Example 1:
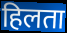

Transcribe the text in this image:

हिलता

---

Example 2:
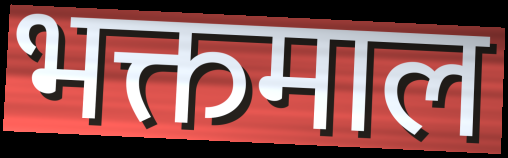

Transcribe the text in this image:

भक्तमाल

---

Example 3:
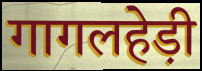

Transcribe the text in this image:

गागलहेड़ी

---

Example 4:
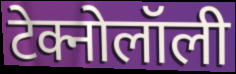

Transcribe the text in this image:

टेक्नोलॉली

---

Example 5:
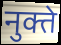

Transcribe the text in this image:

नुक्ते